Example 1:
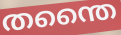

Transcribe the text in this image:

തന്തൈ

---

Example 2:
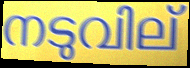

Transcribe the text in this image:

നടുവില്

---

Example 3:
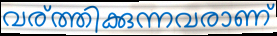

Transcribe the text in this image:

വര്ത്തിക്കുന്നവരാണ്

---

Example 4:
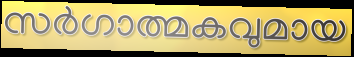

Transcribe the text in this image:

സർഗാത്മകവുമായ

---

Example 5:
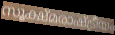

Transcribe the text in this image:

സൂക്ഷ്മരാഷ്ട്രീയം